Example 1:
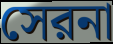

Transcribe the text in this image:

সেরনা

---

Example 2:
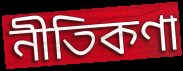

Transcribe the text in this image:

নীতিকণা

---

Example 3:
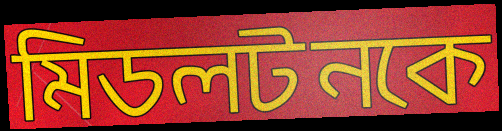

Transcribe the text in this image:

মিডলটনকে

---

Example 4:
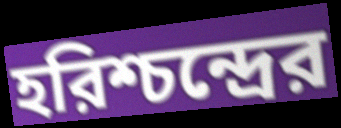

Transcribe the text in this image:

হরিশ্চন্দ্রের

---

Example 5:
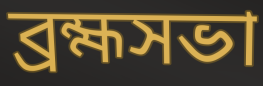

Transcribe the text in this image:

ব্রহ্মসভা